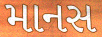
માનસ